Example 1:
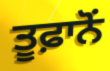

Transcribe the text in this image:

ਤੂਫ਼ਾਨੋਂ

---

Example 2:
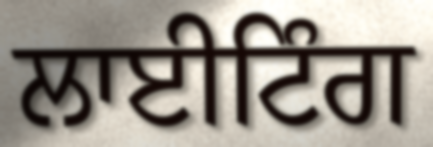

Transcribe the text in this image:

ਲਾਈਟਿੰਗ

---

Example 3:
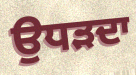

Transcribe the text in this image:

ਉਧੜਦਾ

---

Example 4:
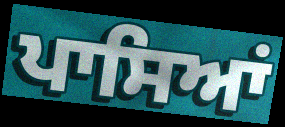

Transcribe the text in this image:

ਪਾਸਿਆਂ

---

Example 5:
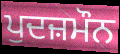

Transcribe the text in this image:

ਪੁਦਜ਼ਮੌਨ